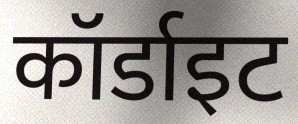
कॉर्डाइट